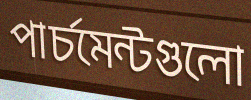
পার্চমেন্টগুলো